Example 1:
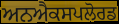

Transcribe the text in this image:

ਅਨਐਕਸਪਲੋਰਡ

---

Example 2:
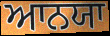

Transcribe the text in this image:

ਆਨਯਾ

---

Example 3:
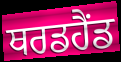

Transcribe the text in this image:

ਥਰਡਹੈਂਡ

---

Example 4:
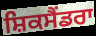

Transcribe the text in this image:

ਸ਼ਿਕਸੈਂਡਰਾ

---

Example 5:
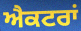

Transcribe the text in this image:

ਐਕਟਰਾਂ